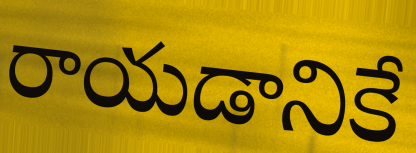
రాయడానికే